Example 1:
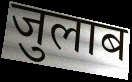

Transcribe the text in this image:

जुलाब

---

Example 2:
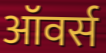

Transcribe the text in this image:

ऑवर्स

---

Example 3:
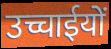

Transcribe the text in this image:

उच्चाईयों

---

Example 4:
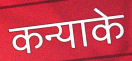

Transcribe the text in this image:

कन्याके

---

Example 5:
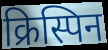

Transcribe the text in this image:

क्रिस्पिन